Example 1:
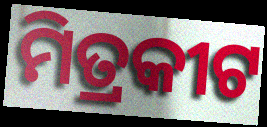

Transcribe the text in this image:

ମିତ୍ରକୀଟ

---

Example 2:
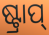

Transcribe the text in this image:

ଷ୍ଟ୍ରାପ୍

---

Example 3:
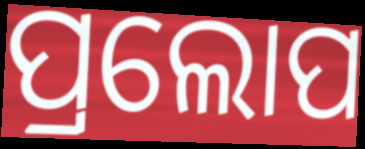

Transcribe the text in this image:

ପ୍ରଲୋପ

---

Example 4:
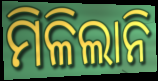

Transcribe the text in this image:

ମିଳିଲାନି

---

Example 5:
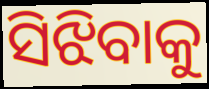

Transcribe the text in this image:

ସିଝିବାକୁ